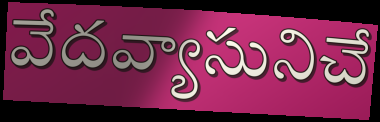
వేదవ్యాసునిచే